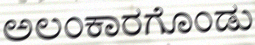
ಅಲಂಕಾರಗೊಂಡು